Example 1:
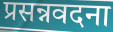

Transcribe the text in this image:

प्रसन्नवदना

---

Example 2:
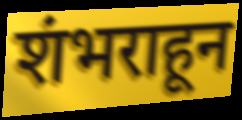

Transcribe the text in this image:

शंभराहून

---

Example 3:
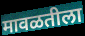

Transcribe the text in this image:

मावळतीला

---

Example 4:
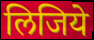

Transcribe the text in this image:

लिजिये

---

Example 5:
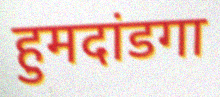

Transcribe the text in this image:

हुमदांडगा